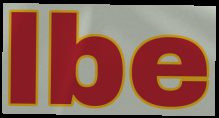
lbe